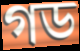
গড